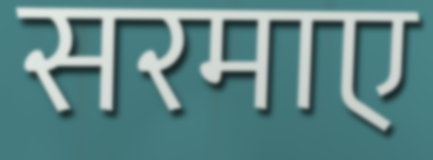
सरमाए